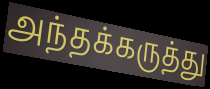
அந்தக்கருத்து